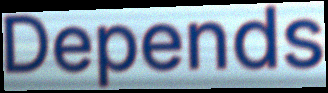
Depends